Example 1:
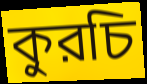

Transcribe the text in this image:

কুরচি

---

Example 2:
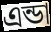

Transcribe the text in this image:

এন্ডা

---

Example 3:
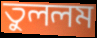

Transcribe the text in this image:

তুললম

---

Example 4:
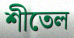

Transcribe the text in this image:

শীতেল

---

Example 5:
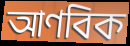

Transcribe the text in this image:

আণবিক